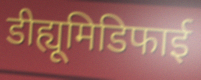
डीह्यूमिडिफाई